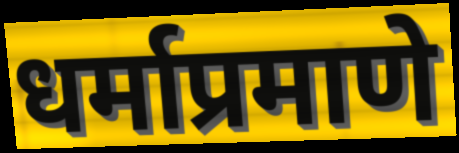
धर्माप्रमाणे